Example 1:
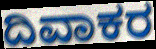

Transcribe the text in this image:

ದಿವಾಕರ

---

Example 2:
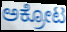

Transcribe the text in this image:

ಅಕ್ರೋಟ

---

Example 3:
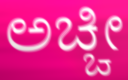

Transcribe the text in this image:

ಅಚ್ಚೀ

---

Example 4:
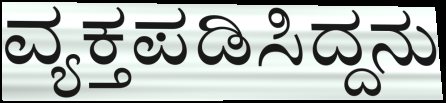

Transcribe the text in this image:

ವ್ಯಕ್ತಪಡಿಸಿದ್ದನು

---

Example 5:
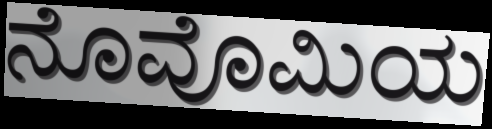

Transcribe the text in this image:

ನೊವೊಮಿಯ